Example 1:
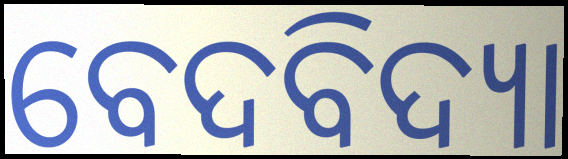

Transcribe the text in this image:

ବେଦବିଦ୍ୟା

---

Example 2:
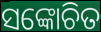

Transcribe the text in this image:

ସଙ୍କୋଚିତ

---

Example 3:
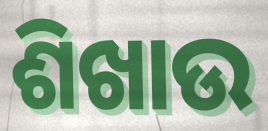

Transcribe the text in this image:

ଶିଖାଉ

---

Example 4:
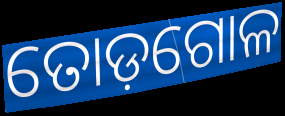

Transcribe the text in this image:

ତୋଡ଼ଗୋଳ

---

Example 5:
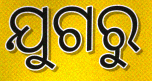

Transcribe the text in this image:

ଯୁଗରୁ